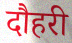
दौहरी